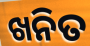
ଖନିତ